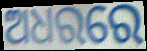
ଅଧରରେ